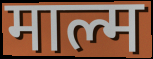
माल्म